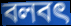
বলবৎ